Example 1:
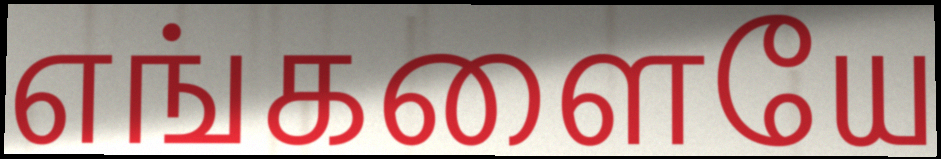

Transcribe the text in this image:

எங்களையே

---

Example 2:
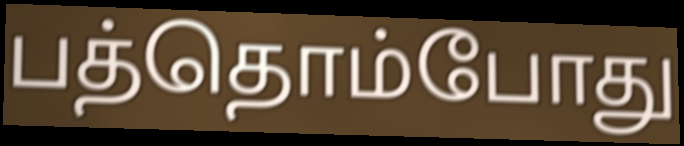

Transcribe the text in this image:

பத்தொம்போது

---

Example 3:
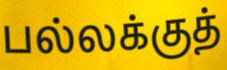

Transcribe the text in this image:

பல்லக்குத்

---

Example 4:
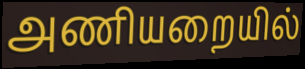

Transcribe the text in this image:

அணியறையில்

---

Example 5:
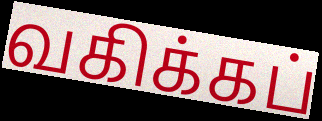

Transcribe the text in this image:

வகிக்கப்